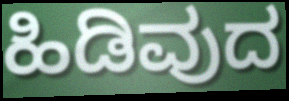
ಹಿಡಿವುದ